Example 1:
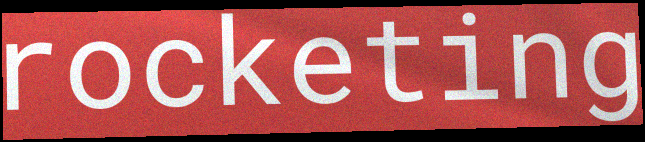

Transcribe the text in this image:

rocketing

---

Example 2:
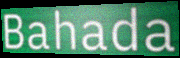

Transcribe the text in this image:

Bahada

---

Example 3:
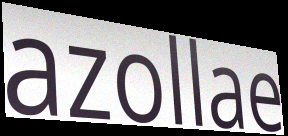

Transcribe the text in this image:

azollae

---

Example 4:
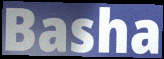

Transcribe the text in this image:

Basha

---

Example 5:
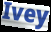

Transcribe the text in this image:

Ivey